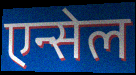
एन्सेल